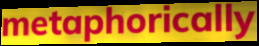
metaphorically